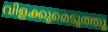
വിളക്കുമെടുത്തു